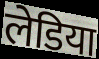
लेडिया